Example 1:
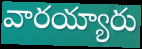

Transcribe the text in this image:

వారయ్యారు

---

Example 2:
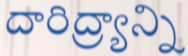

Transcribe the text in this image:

దారిద్ర్యాన్ని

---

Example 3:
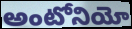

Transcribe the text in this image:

అంటోనియో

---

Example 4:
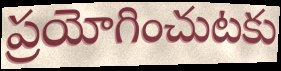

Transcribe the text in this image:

ప్రయోగించుటకు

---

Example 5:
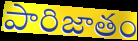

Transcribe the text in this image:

పారిజాతం